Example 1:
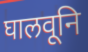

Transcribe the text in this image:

घालवूनि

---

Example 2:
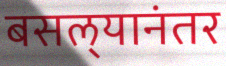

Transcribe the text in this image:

बसल्यानंतर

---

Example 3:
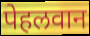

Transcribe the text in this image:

पेहलवान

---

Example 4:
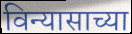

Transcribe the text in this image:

विन्यासाच्या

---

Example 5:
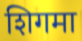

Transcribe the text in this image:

शिगमा